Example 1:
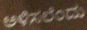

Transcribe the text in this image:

ಅಳಿಸಲೆಂದು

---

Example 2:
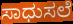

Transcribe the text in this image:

ಸಾಧುಸಲೆ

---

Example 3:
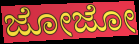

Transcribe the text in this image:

ಜೋಜೋ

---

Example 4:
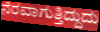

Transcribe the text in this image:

ನೆರವಾಗುತ್ತಿದ್ದುದು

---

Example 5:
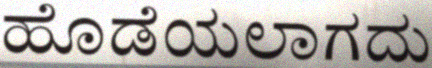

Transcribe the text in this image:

ಹೊಡೆಯಲಾಗದು